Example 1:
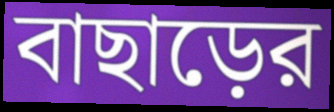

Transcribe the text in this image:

বাছাড়ের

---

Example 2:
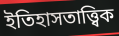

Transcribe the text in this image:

ইতিহাসতাত্ত্বিক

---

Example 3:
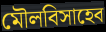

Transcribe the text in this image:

মৌলবিসাহেব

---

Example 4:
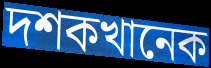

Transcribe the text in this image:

দশকখানেক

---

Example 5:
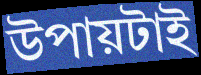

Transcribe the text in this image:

উপায়টাই